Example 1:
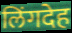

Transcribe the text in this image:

लिंगदेह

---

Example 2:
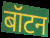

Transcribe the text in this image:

बॉटन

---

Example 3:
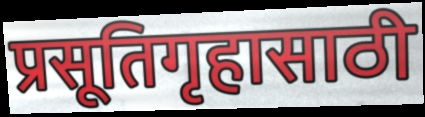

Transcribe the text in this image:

प्रसूतिगृहासाठी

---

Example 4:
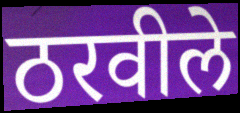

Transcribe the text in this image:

ठरवीले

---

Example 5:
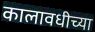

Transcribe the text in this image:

कालावधीच्या